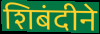
शिबंदीने